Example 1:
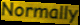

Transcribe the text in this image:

Normally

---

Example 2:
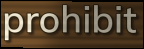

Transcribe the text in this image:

prohibit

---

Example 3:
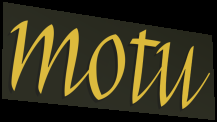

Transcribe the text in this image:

motu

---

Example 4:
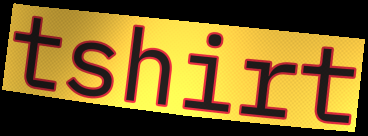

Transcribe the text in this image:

tshirt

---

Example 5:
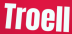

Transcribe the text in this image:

Troell